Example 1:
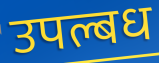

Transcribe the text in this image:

उपल्‍बध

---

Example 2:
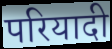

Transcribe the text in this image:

परियादी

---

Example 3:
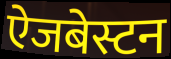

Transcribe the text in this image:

ऐजबेस्टन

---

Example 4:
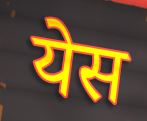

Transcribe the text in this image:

येस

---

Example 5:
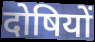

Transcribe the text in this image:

दोषियों